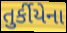
તુર્કીયેના